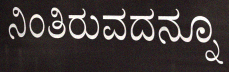
ನಿಂತಿರುವದನ್ನೂ